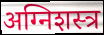
अग्निशस्त्र